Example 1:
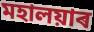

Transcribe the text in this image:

মহালয়াৰ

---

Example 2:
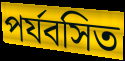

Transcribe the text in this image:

পৰ্যবসিত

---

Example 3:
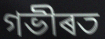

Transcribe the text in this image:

গভীৰত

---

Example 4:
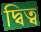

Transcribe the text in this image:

দ্বিত্ব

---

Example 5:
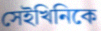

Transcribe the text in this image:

সেইখিনিকে